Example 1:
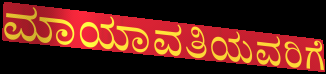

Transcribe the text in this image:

ಮಾಯಾವತಿಯವರಿಗೆ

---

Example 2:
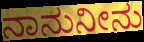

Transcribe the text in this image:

ನಾನುನೀನು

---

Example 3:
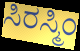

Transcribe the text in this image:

ಸಿರಸ್ಮಿಂ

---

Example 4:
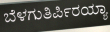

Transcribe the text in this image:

ಬೆಳಗುತಿರ್ಪಿರಯ್ಯಾ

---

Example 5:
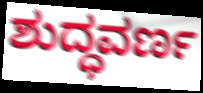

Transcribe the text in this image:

ಶುದ್ಧವರ್ಣ